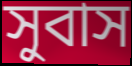
সুবাস